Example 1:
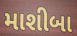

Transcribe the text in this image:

માશીબા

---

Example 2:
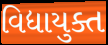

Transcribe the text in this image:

વિદ્યાયુક્ત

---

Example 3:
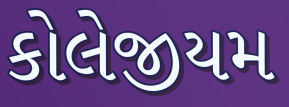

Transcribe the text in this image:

કોલેજીયમ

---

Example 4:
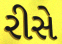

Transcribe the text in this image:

રીસે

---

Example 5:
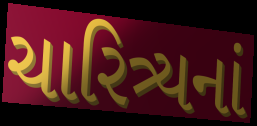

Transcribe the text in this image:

ચારિત્ર્યનાં